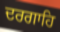
ਦਰਗਾਹਿ